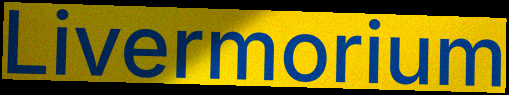
Livermorium